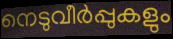
നെടുവീർപ്പുകളും